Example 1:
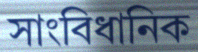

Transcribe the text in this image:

সাংবিধানিক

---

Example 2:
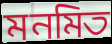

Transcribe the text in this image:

মনমিত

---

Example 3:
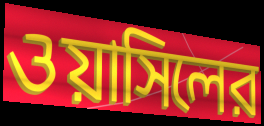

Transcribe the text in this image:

ওয়াসিলের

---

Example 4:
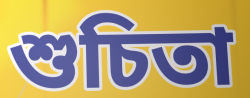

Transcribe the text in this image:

শুচিতা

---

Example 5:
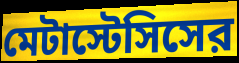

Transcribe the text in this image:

মেটাস্টেসিসের